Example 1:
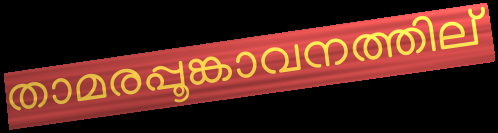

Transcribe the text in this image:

താമരപ്പൂങ്കാവനത്തില്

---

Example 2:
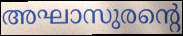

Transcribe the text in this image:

അഘാസുരന്റെ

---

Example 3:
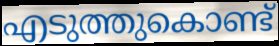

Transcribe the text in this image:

എടുത്തുകൊണ്ട്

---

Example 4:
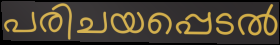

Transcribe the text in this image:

പരിചയപ്പെടൽ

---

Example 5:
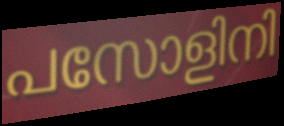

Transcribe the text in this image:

പസോളിനി